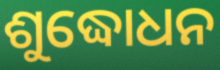
ଶୁଦ୍ଧୋଧନ